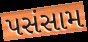
પસંસામ